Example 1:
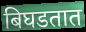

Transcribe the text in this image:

बिघडतात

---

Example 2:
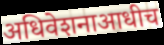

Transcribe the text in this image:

अधिवेशनाआधीच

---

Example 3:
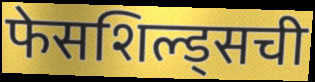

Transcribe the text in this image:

फेसशिल्ड्सची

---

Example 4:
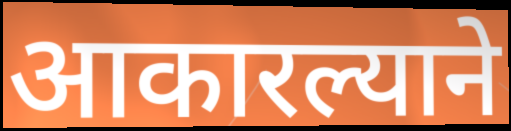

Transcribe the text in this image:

आकारल्याने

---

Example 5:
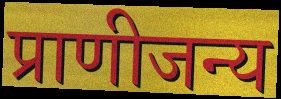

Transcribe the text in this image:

प्राणीजन्य